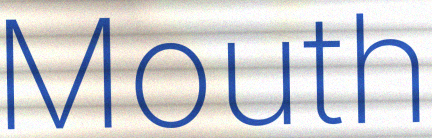
Mouth